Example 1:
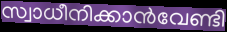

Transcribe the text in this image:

സ്വാധീനിക്കാൻവേണ്ടി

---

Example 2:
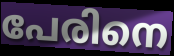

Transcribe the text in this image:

പേരിനെ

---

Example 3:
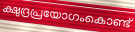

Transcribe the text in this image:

ക്ഷുദ്രപ്രയോഗംകൊണ്ട്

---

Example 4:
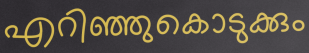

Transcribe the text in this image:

എറിഞ്ഞുകൊടുക്കും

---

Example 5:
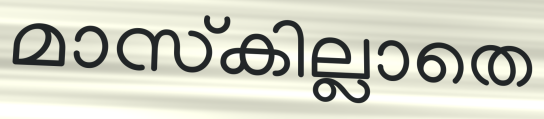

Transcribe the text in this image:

മാസ്‌കില്ലാതെ